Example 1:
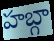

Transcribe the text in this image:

హబ్గా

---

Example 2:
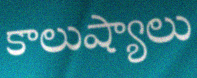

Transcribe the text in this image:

కాలుష్యాలు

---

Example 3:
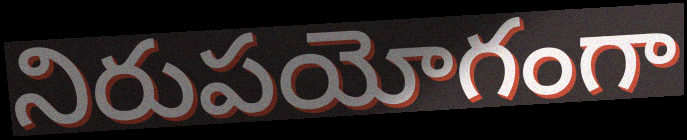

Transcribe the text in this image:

నిరుపయోగంగా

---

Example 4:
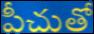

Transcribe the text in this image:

పీచుతో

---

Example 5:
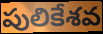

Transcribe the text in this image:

పులికేశవ